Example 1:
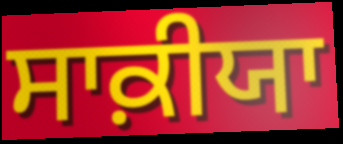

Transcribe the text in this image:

ਸਾਕ਼ੀਯਾ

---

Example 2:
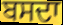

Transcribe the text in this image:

ਬਸਦਾ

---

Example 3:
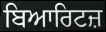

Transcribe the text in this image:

ਬਿਆਰਿਟਜ਼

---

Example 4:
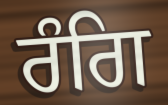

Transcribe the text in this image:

ਰੰਗਿ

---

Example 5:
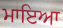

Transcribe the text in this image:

ਮਾਇਆ